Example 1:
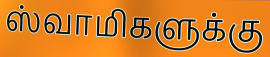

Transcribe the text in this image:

ஸ்வாமிகளுக்கு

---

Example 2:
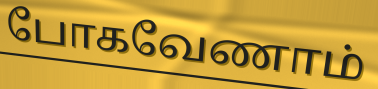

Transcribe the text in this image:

போகவேணாம்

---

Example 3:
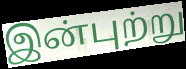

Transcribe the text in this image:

இன்புற்று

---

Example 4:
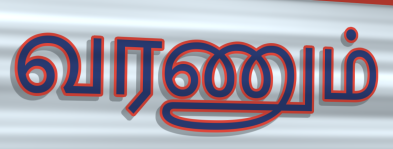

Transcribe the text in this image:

வரணும்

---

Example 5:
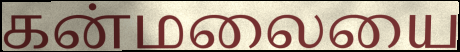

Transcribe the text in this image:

கன்மலையை